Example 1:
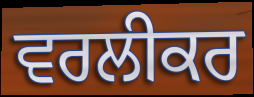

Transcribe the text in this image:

ਵਰਲੀਕਰ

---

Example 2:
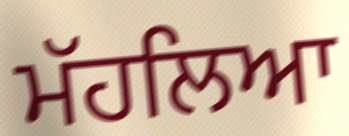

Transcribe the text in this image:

ਮੱਹਲਿਆ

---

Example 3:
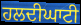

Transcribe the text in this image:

ਹਲਦੀਘਾਟੀ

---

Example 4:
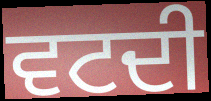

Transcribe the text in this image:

ਵਟਦੀ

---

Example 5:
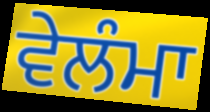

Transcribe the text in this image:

ਵੇਲੰਮਾ